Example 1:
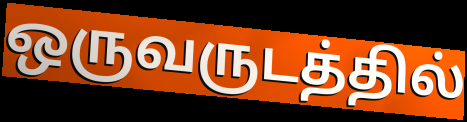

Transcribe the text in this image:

ஒருவருடத்தில்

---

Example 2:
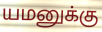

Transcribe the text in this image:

யமனுக்கு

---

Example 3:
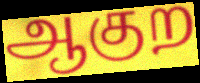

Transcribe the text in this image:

ஆகுற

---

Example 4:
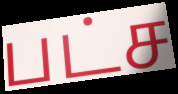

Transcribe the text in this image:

பட்ச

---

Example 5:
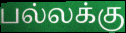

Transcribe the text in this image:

பல்லக்கு